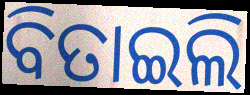
ବିତାଇଲି